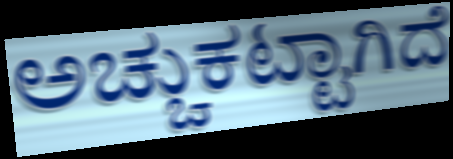
ಅಚ್ಚುಕಟ್ಟಾಗಿದೆ